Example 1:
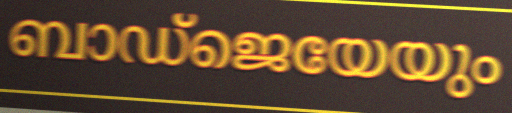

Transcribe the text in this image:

ബാഡ്ജെയേയും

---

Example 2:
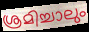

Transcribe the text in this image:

ശ്രമിച്ചാലും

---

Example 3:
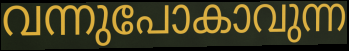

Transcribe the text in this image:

വന്നുപോകാവുന്ന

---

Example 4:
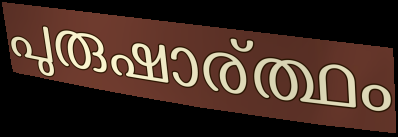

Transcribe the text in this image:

പുരുഷാര്ത്ഥം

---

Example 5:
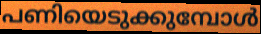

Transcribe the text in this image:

പണിയെടുക്കുമ്പോൾ